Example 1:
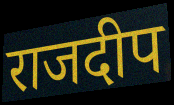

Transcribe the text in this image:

राजदीप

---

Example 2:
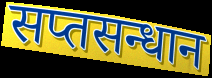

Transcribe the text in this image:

सप्तसन्धान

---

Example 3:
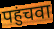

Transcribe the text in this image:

पहुंचवा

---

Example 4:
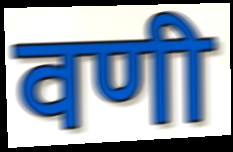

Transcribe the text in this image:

वणी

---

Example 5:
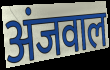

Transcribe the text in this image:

अंजवाल